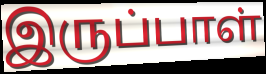
இருப்பாள்